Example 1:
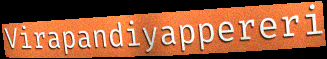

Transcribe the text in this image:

Virapandiyappereri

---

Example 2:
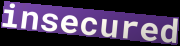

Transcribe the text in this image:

insecured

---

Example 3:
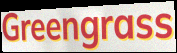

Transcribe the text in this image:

Greengrass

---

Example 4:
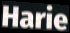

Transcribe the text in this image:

Harie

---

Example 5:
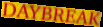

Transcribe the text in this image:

DAYBREAK